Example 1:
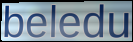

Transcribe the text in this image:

beledu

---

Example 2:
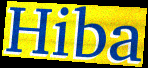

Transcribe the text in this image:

Hiba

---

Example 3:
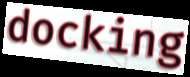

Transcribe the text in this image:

docking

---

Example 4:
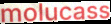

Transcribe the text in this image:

molucass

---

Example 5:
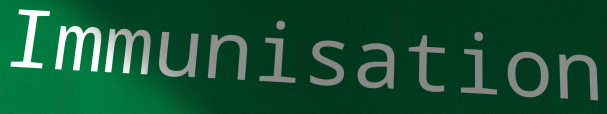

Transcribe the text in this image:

Immunisation